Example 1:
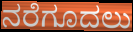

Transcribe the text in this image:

ನರೆಗೂದಲು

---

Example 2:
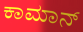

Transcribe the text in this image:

ಕಾಮಾನ್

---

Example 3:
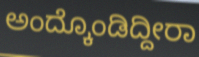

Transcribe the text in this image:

ಅಂದ್ಕೊಂಡಿದ್ದೀರಾ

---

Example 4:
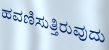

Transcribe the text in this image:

ಹವಣಿಸುತ್ತಿರುವುದು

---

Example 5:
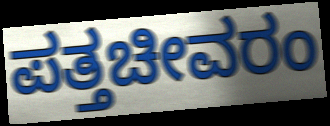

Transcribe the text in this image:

ಪತ್ತಚೀವರಂ